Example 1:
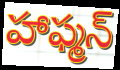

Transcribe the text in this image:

హాఫ్మన్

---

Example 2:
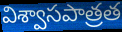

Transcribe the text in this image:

విశ్వాసపాత్రత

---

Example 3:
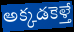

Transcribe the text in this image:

అక్కడకెళ్తే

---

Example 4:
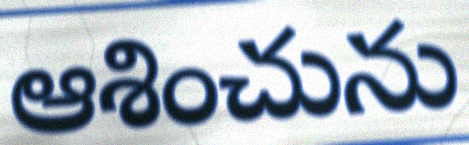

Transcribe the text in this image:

ఆశించును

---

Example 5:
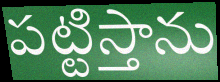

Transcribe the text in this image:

పట్టిస్తాను